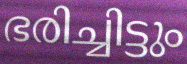
ഭരിച്ചിട്ടും